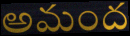
అమంద